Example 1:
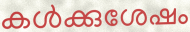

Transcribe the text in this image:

കൾക്കുശേഷം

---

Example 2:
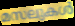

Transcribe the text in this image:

മസലുകൾ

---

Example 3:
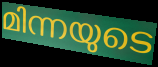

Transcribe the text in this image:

മിന്നയുടെ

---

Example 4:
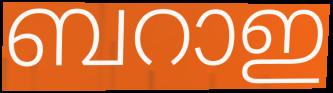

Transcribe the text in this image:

ബറാഇ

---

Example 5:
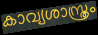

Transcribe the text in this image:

കാവ്യശാസ്ത്രം